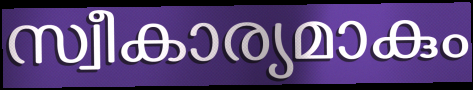
സ്വീകാര്യമാകും